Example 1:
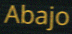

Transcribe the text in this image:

Abajo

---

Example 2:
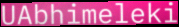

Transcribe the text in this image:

UAbhimeleki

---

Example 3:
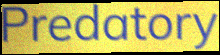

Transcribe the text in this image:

Predatory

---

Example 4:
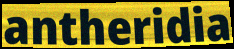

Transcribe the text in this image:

antheridia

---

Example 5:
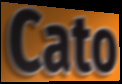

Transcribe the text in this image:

Cato